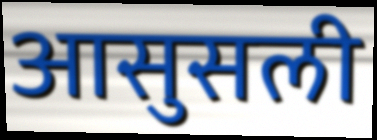
आसुसली